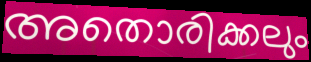
അതൊരിക്കലും